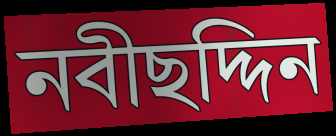
নবীছদ্দিন